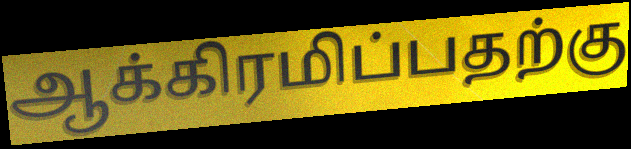
ஆக்கிரமிப்பதற்கு